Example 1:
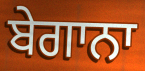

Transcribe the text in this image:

ਬੇਗਾਨਾ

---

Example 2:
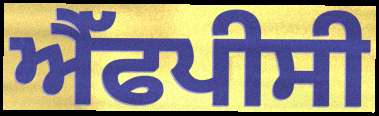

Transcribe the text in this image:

ਐੱਫਪੀਸੀ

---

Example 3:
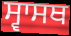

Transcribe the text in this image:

ਸ੍ਵਾਸਥ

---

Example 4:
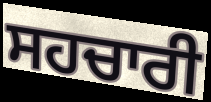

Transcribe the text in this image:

ਸਹਚਾਰੀ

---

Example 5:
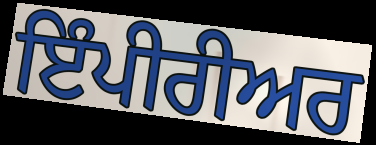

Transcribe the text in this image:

ਇੰਪੀਰੀਅਰ